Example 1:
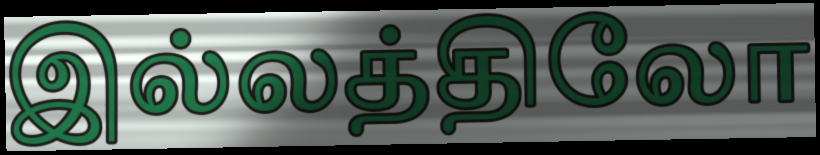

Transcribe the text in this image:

இல்லத்திலோ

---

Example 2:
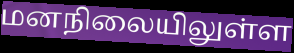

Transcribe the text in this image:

மனநிலையிலுள்ள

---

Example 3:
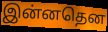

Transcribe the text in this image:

இன்னதென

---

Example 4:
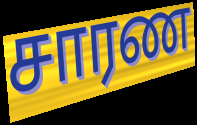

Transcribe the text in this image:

சாரண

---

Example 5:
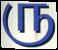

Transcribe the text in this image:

ரு